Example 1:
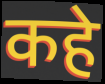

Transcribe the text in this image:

कहे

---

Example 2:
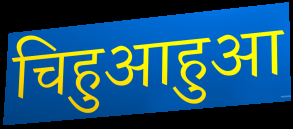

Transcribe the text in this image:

चिहुआहुआ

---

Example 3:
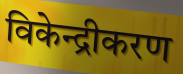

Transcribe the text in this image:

विकेन्द्रीकरण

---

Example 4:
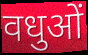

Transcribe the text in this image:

वधुओं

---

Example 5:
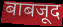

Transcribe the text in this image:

बाबजूद